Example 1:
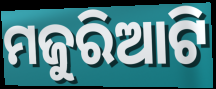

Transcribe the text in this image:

ମଜୁରିଆଟି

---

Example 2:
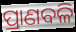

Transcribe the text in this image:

ପ୍ରାଣବଳି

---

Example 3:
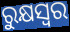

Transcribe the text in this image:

ରୁକ୍ଷସ୍ୱର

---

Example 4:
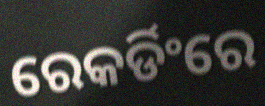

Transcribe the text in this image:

ରେକର୍ଡିଂରେ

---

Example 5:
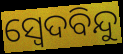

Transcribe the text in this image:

ସ୍ଵେଦବିନ୍ଦୁ